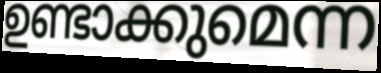
ഉണ്ടാക്കുമെന്ന